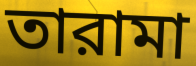
তারামা